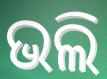
ଭଲି